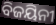
ବିଜୟିନୀ